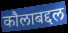
कौलाबद्दल